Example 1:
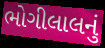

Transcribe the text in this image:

ભોગીલાલનું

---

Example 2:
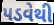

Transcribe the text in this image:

પડવેથી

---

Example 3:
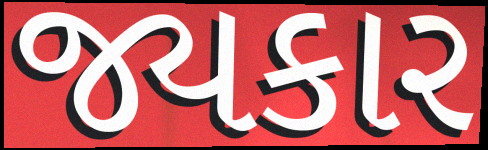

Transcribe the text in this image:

જ્યકાર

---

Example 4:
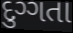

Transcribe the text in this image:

દુગ્ગતા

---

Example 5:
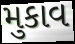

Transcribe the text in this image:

મુકાવ